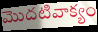
మొదటివాక్యం